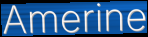
Amerine